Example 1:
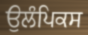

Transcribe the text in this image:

ਉਲੰਪਿਕਸ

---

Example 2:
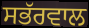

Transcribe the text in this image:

ਸਭੱਰਵਾਲ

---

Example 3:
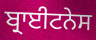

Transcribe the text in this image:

ਬ੍ਰਾਈਟਨੇਸ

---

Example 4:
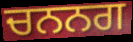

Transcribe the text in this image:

ਚਨਨਗ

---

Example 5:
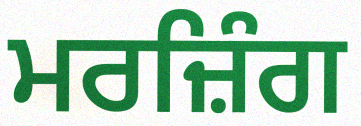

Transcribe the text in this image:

ਮਰਜ਼ਿੰਗ